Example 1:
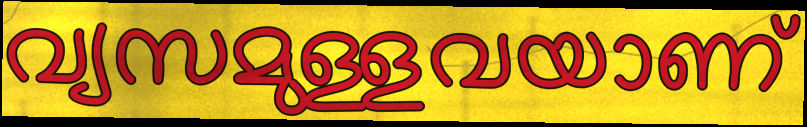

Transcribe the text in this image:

വ്യസമുള്ളവയാണ്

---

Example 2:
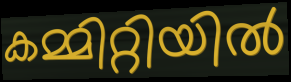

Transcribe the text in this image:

കമ്മിറ്റിയിൽ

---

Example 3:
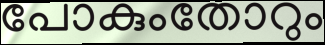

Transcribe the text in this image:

പോകുംതോറും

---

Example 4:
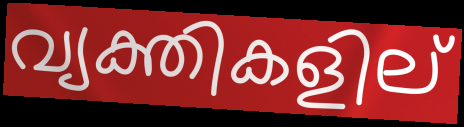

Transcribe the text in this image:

വ്യക്തികളില്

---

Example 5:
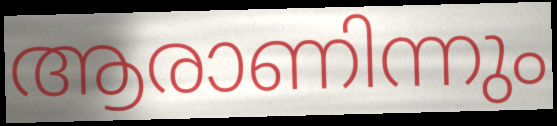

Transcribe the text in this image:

ആരാണിന്നും